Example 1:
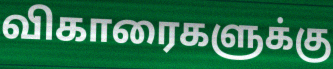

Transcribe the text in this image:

விகாரைகளுக்கு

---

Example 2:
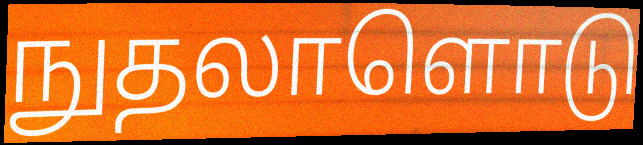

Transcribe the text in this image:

நுதலாளொடு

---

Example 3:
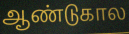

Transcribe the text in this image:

ஆண்டுகால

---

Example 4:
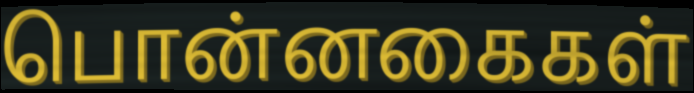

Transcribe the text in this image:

பொன்னகைகள்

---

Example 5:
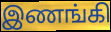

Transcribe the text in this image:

இணங்கி